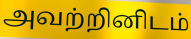
அவற்றினிடம்